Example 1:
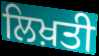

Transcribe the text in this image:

ਲਿਖ਼ਤੀ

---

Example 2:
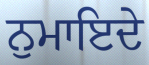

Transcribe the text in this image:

ਨੁਮਾਇਦੇ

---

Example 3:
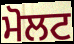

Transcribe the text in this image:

ਮੋਲਟ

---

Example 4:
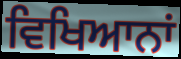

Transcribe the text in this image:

ਵਿਖਿਆਨਾਂ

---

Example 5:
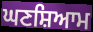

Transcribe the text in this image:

ਘਣਸ਼ਿਆਮ